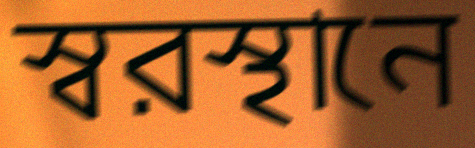
স্বরস্থানে